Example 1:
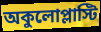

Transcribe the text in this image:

অকুলোপ্লাস্টি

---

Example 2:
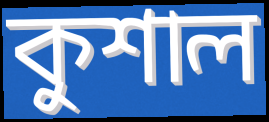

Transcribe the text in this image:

কুশাল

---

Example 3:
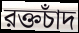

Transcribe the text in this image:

রক্তচাঁদ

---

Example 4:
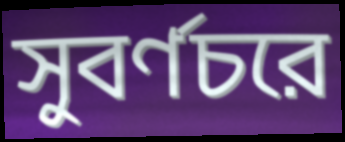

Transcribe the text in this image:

সুবর্ণচরে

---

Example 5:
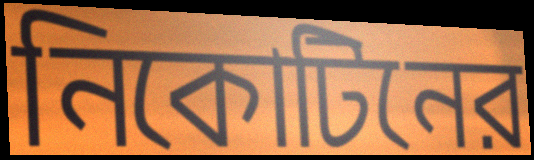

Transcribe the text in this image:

নিকোটিনের